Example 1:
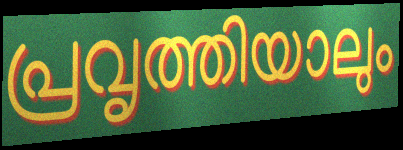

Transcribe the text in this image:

പ്രവൃത്തിയാലും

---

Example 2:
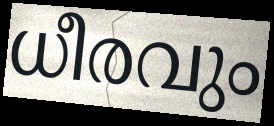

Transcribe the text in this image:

ധീരവും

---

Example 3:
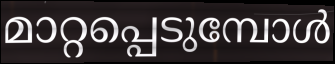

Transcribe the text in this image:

മാറ്റപ്പെടുമ്പോൾ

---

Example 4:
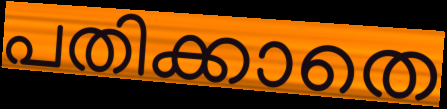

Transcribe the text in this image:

പതിക്കാതെ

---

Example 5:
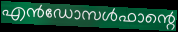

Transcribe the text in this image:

എൻഡോസൾഫാന്റെ